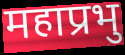
महाप्रभु